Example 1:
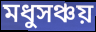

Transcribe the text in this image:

মধুসঞ্চয়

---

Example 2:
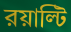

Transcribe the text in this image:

রয়াল্টি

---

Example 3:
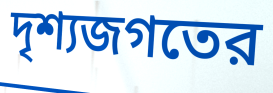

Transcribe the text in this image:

দৃশ্যজগতের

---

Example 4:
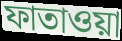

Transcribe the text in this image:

ফাতাওয়া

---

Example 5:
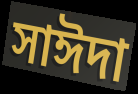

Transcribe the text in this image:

সাঈদা